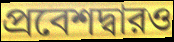
প্রবেশদ্বারও